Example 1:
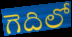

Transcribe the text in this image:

గెదిలో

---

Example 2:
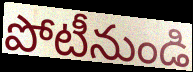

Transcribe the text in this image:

పోటీనుండి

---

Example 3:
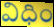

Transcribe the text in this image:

విధిం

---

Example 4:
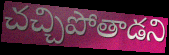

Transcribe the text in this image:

చచ్చిపోతాడని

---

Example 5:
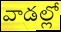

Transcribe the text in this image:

వాడల్లో